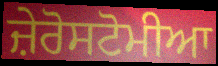
ਜ਼ੇਰੋਸਟੋਮੀਆ